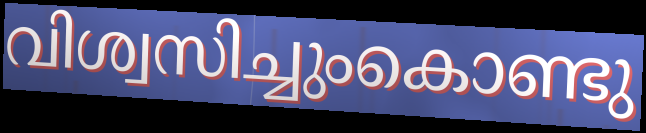
വിശ്വസിച്ചുംകൊണ്ടു